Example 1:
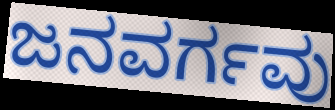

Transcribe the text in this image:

ಜನವರ್ಗವು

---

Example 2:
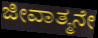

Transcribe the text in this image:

ಜೀವಾತ್ಮನೇ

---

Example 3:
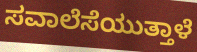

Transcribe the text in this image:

ಸವಾಲೆಸೆಯುತ್ತಾಳೆ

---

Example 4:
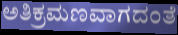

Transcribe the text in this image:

ಅತಿಕ್ರಮಣವಾಗದಂತೆ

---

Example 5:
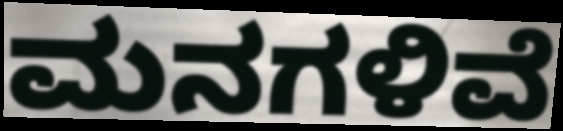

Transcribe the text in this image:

ಮನಗಳಿವೆ